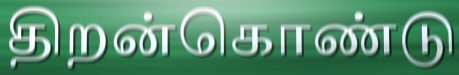
திறன்கொண்டு